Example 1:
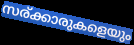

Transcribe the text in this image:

സര്ക്കാരുകളെയും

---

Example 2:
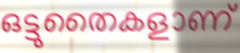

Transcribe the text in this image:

ഒട്ടുതൈകളാണ്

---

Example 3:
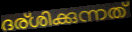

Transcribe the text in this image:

ദര്ശിക്കുന്നത്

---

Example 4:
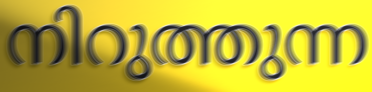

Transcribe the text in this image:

നിറുത്തുന്ന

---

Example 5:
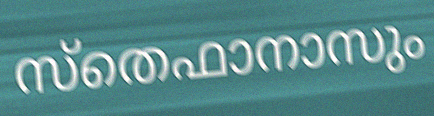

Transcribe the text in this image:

സ്തെഫാനാസും